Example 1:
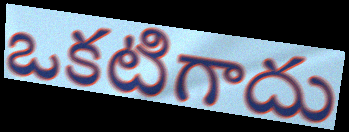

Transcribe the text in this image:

ఒకటిగాదు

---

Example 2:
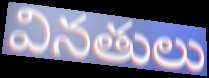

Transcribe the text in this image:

వినతులు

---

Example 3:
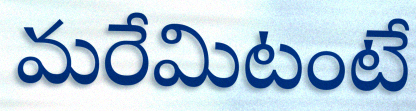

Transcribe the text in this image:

మరేమిటంటే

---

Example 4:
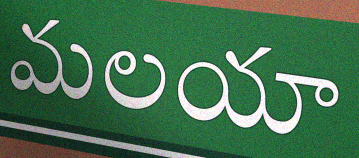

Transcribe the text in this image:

మలయా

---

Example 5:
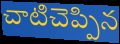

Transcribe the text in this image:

చాటిచెప్పిన